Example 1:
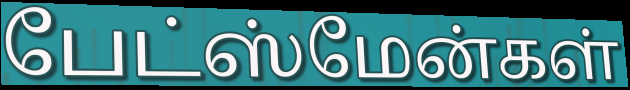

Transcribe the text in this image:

பேட்ஸ்மேன்கள்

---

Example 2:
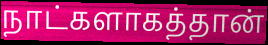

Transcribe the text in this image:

நாட்களாகத்தான்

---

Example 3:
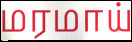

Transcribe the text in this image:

மரமாய்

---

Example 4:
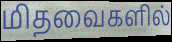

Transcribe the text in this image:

மிதவைகளில்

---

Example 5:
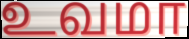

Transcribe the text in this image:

உவமா